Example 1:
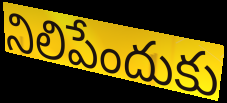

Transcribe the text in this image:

నిలిపేందుకు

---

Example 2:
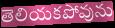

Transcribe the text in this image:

తెలియకపోవును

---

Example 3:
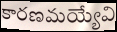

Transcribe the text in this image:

కారణమయ్యేవి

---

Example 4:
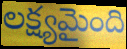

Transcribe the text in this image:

లక్ష్యమైంది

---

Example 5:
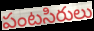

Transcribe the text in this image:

పంటసిరులు